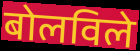
बोलविले